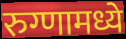
रुग्णामध्ये